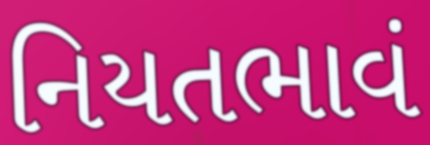
નિયતભાવં